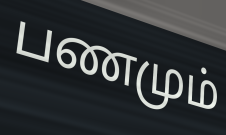
பணமும்